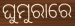
ଘୁମୁରାରେ